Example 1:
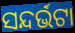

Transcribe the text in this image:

ସନ୍ଦର୍ଭଟା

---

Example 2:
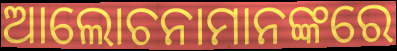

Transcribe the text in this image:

ଆଲୋଚନାମାନଙ୍କରେ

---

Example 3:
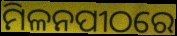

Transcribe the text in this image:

ମିଳନପୀଠରେ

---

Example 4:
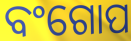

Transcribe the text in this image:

ବଂଗୋପ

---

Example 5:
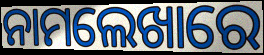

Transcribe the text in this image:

ନାମଲେଖାରେ